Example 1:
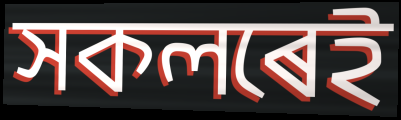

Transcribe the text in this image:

সকলৰেই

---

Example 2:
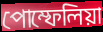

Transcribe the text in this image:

পোম্ফেলিয়া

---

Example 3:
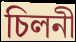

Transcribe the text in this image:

চিলনী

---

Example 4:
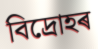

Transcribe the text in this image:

বিদ্ৰোহৰ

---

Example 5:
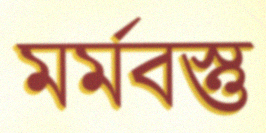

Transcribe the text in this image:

মৰ্মবস্তু